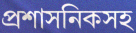
প্রশাসনিকসহ